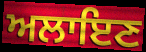
ਅਲਾਇਣ